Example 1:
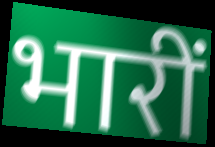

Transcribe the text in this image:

भारीं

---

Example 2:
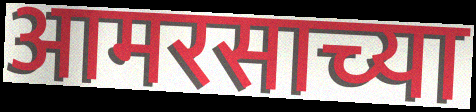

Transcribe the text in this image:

आमरसाच्या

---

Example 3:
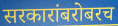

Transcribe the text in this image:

सरकारांबरोबरच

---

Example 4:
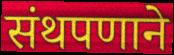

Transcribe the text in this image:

संथपणाने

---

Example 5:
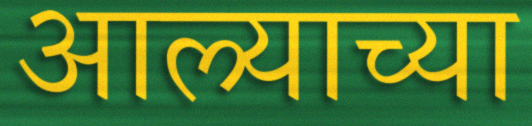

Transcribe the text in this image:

आल्याच्या